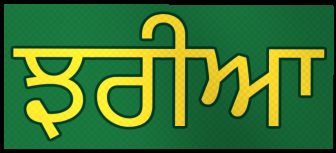
ਝਰੀਆ